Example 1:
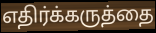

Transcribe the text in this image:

எதிர்க்கருத்தை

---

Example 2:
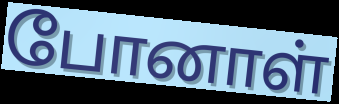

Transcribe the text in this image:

போனாள்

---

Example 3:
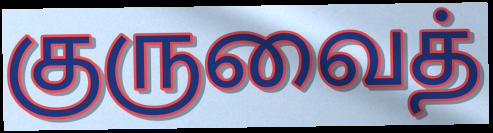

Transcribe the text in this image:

குருவைத்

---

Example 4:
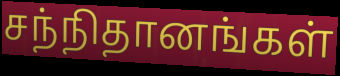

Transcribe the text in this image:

சந்நிதானங்கள்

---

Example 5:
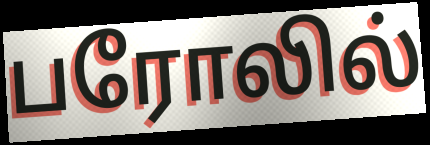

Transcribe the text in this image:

பரோலில்